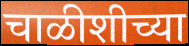
चाळीशीच्या